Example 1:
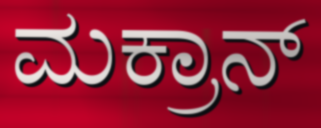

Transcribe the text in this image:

ಮಕ್ರಾನ್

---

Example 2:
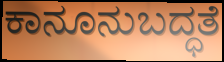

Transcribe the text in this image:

ಕಾನೂನುಬದ್ಧತೆ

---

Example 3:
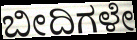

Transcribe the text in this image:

ಬೀದಿಗಳೇ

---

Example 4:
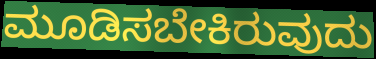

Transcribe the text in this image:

ಮೂಡಿಸಬೇಕಿರುವುದು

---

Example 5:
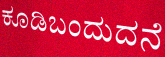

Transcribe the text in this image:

ಕೂಡಿಬಂದುದನೆ